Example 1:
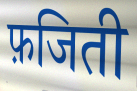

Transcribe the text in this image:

फ़जिती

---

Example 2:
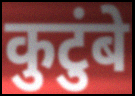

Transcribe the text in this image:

कुटुंबे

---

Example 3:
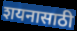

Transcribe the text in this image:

शयनासाठी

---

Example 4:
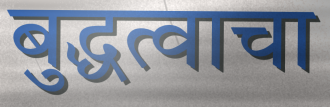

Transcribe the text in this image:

बुद्धत्वाचा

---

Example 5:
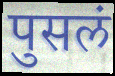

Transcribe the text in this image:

पुसलं